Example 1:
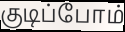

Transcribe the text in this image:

குடிப்போம்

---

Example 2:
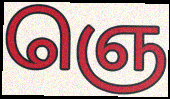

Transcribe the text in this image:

ஞெ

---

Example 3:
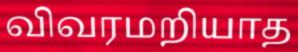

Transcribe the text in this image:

விவரமறியாத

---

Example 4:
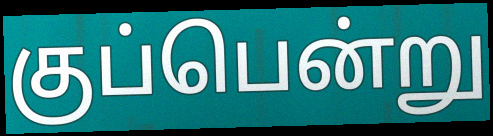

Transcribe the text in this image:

குப்பென்று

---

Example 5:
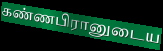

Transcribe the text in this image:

கண்ணபிரானுடைய